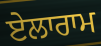
ਏਲਾਰਾਮ